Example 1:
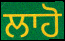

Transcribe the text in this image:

ਲਾਹੋ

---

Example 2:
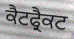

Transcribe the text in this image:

ਕੈਟਫ੍ਰੈਕਟ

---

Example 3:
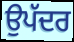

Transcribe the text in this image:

ਉਪੱਦਰ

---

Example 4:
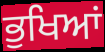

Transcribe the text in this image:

ਭੁਖਿਆਂ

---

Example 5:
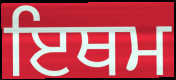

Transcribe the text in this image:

ਇਥਮ